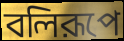
বলিরূপে